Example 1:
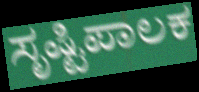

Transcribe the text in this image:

ಸೃಷ್ಟಿಪಾಲಕ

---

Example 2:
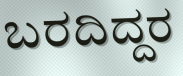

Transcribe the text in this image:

ಬರದಿದ್ದರ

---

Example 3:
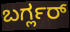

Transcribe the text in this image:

ಬರ್ಗ್ಲರ್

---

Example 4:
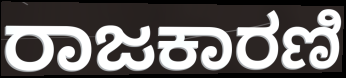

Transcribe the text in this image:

ರಾಜಕಾರಣಿ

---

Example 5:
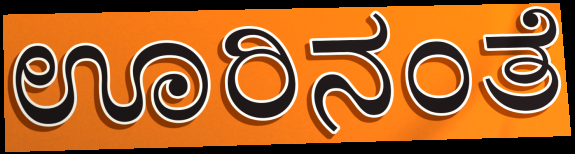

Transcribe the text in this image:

ಊರಿನಂತೆ